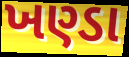
ખણ્ડા